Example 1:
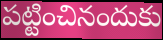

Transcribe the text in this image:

పట్టించినందుకు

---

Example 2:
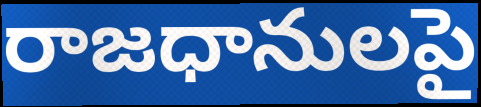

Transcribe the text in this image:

రాజధానులపై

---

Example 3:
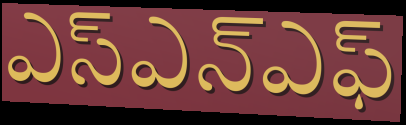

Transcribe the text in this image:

ఎస్ఎన్ఎఫ్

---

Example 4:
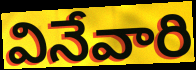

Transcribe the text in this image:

వినేవారి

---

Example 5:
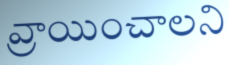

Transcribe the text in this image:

వ్రాయించాలని